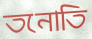
তনোতি